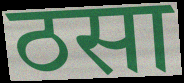
ठसा